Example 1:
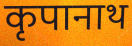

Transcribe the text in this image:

कृपानाथ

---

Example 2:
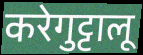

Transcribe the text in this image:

करेगुट्टालू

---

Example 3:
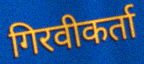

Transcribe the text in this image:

गिरवीकर्ता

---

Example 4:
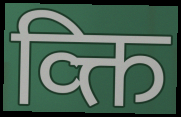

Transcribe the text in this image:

व्क्ति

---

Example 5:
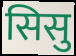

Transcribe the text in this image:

सिसु